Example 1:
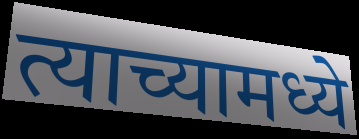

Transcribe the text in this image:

त्याच्यामध्ये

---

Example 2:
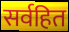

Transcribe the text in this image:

सर्वहित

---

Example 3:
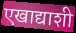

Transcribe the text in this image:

एखाद्याशी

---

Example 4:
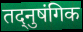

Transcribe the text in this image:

तद्नुषंगिक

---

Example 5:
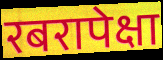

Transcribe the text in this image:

रबरापेक्षा